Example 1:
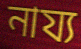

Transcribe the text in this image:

নায্য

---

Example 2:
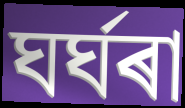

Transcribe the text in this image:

ঘৰ্ঘৰা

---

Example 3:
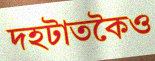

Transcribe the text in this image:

দহটাতকৈও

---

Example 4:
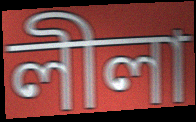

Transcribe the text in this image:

লীলা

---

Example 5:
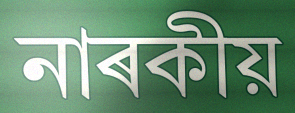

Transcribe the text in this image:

নাৰকীয়